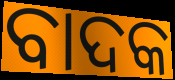
ବାଦକ